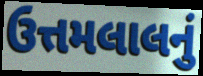
ઉત્તમલાલનું